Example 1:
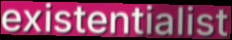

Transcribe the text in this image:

existentialist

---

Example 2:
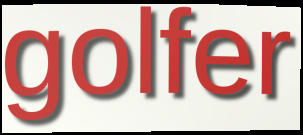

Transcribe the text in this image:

golfer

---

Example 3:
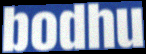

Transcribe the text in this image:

bodhu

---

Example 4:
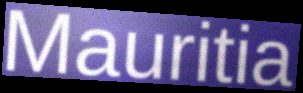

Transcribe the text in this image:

Mauritia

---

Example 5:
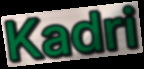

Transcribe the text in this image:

Kadri